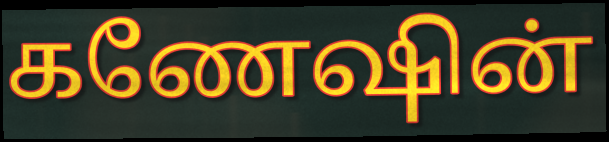
கணேஷின்